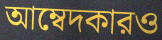
আম্বেদকারও